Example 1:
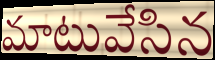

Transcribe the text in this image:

మాటువేసిన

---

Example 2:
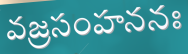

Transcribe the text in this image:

వజ్రసంహననః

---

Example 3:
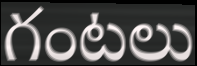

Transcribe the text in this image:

గంటలు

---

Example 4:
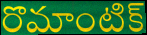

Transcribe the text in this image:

రొమాంటిక్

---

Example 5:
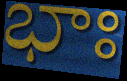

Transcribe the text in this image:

భాః